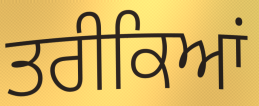
ਤਰੀਕਿਆਂ